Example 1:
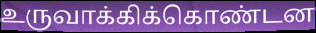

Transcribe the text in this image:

உருவாக்கிக்கொண்டன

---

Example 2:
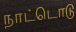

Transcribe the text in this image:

நாட்டொடு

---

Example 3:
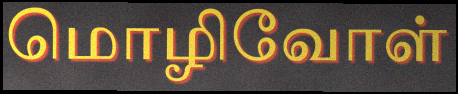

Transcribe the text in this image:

மொழிவோள்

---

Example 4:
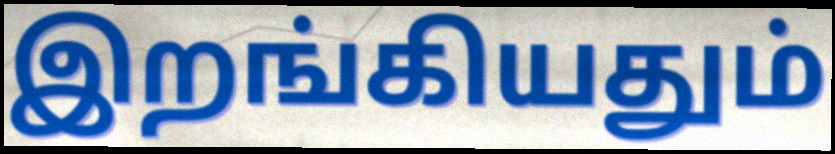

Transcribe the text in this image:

இறங்கியதும்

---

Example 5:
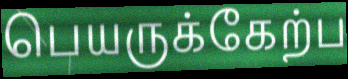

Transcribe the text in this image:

பெயருக்கேற்ப